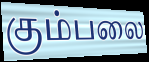
கும்பலை